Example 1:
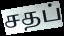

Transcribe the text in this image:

சதப்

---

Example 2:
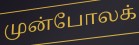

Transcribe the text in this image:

முன்போலக்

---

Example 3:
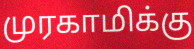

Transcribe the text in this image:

முரகாமிக்கு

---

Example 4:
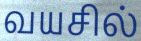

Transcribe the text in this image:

வயசில்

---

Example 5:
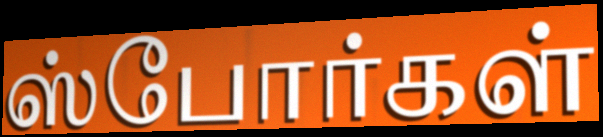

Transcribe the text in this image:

ஸ்போர்கள்